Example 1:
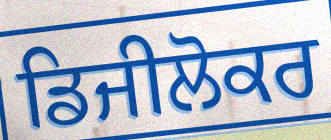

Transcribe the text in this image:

ਡਿਜੀਲੋਕਰ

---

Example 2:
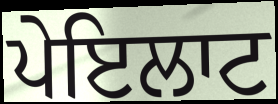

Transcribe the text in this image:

ਪੇਇਲਾਟ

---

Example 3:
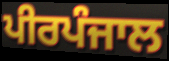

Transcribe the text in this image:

ਪੀਰਪੰਜਾਲ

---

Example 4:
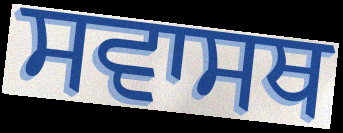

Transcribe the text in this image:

ਸਵਾਸਥ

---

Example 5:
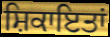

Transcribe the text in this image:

ਸ਼ਿਕਾਇਤਾਂ